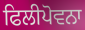
ਫਿਲੀਪੋਵਨਾ